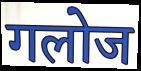
गलोज